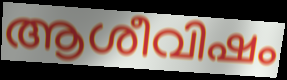
ആശീവിഷം